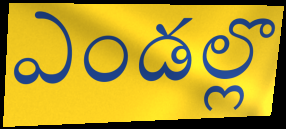
ఎండల్లొ